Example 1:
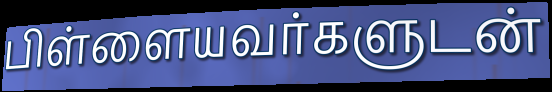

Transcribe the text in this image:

பிள்ளையவர்களுடன்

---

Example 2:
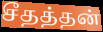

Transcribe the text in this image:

சீதத்தன்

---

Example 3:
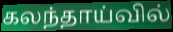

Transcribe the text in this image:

கலந்தாய்வில்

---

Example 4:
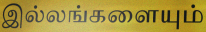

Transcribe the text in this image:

இல்லங்களையும்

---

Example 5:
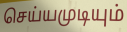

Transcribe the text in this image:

செய்யமுடியும்